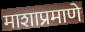
माशाप्रमाणे